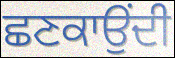
ਛਣਕਾਉਂਦੀ